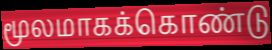
மூலமாகக்கொண்டு